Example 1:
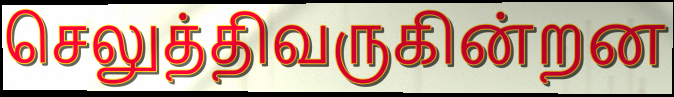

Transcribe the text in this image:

செலுத்திவருகின்றன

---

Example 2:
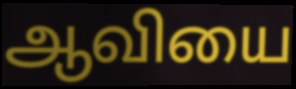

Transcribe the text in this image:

ஆவியை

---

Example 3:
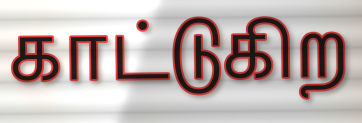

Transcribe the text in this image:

காட்டுகிற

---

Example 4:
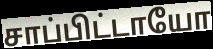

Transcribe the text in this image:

சாப்பிட்டாயோ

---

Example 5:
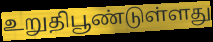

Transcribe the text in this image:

உறுதிபூண்டுள்ளது